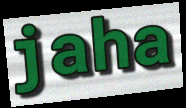
jaha